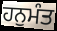
ਹਨੁਮੰਤ